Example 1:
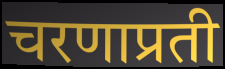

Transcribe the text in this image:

चरणाप्रती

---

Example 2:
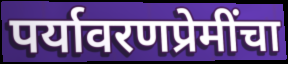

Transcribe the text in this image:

पर्यावरणप्रेमींचा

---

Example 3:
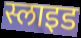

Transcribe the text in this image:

स्लाइड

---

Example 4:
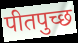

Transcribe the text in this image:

पीतपुच्छ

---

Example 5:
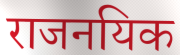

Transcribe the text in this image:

राजनयिक